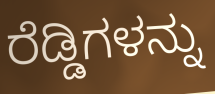
ರೆಡ್ಡಿಗಳನ್ನು